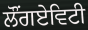
ਲੌਂਗਏਵਿਟੀ